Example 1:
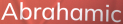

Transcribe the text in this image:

Abrahamic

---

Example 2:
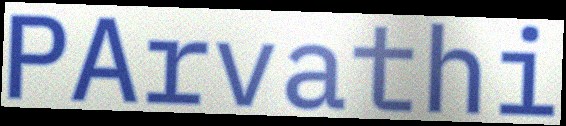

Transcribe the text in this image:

PArvathi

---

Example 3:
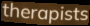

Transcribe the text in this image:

therapists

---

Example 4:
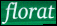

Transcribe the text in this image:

florat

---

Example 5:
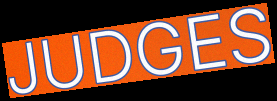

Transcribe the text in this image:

JUDGES